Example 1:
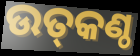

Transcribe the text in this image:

ଉତ୍‌କଣ୍ଠ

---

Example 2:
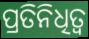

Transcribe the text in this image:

ପ୍ରତିନିଧିତ୍ବ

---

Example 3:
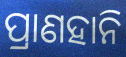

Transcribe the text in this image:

ପ୍ରାଣହାନି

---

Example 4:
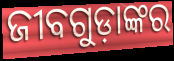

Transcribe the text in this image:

ଜୀବଗୁଡ଼ାଙ୍କର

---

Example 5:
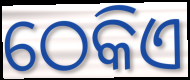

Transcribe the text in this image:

ଠେକିଏ